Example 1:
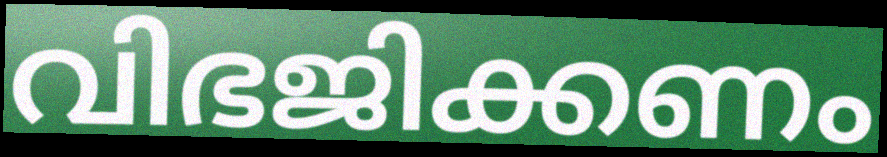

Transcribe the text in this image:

വിഭജിക്കണം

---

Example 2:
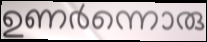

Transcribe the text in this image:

ഉണർന്നൊരു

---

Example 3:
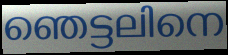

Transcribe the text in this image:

ഞെട്ടലിനെ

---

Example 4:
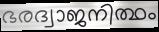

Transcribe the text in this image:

ഭരദ്വാജനിത്ഥം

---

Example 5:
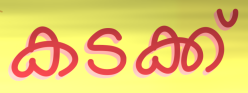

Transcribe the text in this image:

കടക്ക്